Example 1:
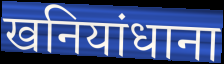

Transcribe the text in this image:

खनियांधाना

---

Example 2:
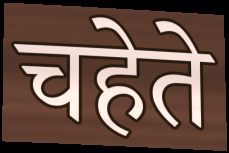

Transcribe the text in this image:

चहेते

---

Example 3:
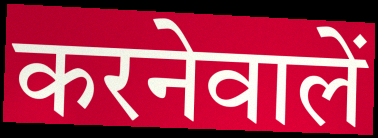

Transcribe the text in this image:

करनेवालें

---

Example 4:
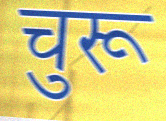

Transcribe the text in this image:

चुरू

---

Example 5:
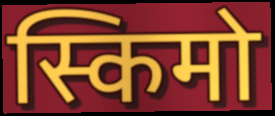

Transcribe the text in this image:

स्किमो